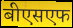
बीएसएफ